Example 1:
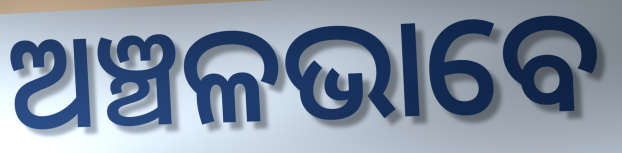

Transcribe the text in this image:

ଅଞ୍ଚଳଭାବେ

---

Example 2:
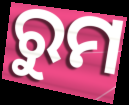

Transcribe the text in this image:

ରୁମ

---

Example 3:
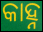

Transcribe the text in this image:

କାହ୍ନ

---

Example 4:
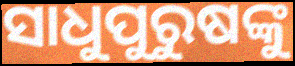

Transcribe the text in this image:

ସାଧୁପୁରୁଷଙ୍କୁ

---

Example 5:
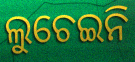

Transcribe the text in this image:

ଲୁଚେଇନି